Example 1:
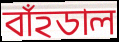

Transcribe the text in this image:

বাঁহডাল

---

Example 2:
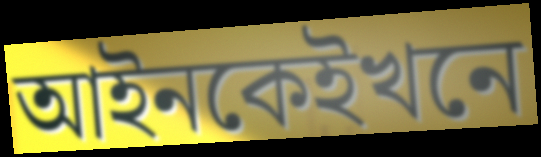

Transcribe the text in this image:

আইনকেইখনে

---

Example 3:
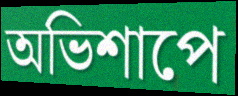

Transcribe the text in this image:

অভিশাপে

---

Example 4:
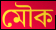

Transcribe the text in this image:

মৌক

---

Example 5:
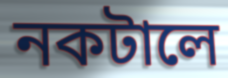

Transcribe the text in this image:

নকটালে